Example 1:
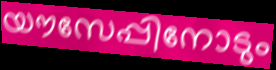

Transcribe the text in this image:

യൗസേപ്പിനോടും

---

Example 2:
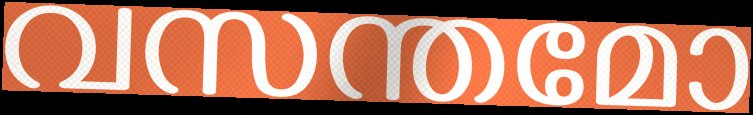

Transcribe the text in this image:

വസന്തമോ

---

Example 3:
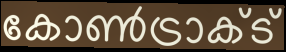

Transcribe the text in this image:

കോൺട്രാക്ട്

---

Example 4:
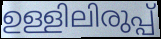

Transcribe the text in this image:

ഉള്ളിലിരുപ്പ്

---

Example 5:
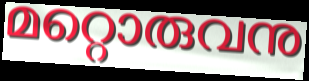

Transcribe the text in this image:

മറ്റൊരുവനു